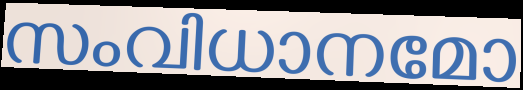
സംവിധാനമോ